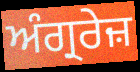
ਅੰਗ੍ਰਰੇਜ਼